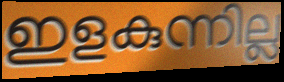
ഇളകുന്നില്ല